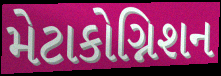
મેટાકોગ્નિશન